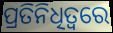
ପ୍ରତିନିଧିତ୍ବରେ